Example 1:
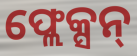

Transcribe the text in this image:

ଫ୍ଲେକ୍ସନ୍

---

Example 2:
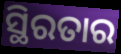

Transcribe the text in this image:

ସ୍ଥିରତାର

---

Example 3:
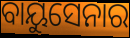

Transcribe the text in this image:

ବାୟୁସେନାର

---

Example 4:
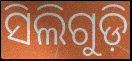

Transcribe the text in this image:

ସିଲିଗୁଡ଼ି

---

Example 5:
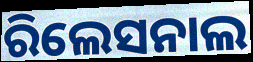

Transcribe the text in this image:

ରିଲେସନାଲ